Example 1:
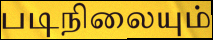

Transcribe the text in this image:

படிநிலையும்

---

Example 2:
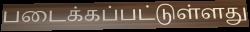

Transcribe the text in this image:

படைக்கப்பட்டுள்ளது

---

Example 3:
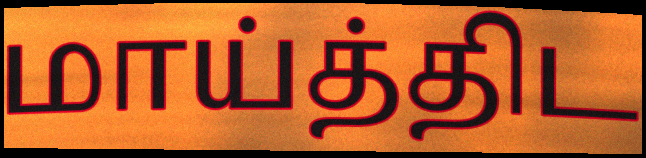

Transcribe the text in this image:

மாய்த்திட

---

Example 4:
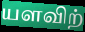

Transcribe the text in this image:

யளவிற்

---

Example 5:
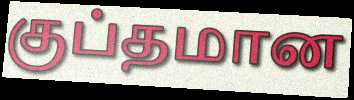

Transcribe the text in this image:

குப்தமான